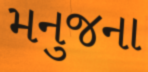
મનુજના